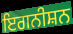
ਇਗਨੀਸ਼ਨ